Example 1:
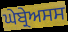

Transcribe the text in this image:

ਘੇਬ੍ਰੇਅਸਸ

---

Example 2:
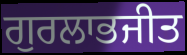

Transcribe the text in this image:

ਗੁਰਲਾਭਜੀਤ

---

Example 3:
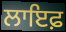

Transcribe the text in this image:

ਲਾਇਫ਼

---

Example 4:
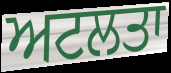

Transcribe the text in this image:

ਅਟਲਤਾ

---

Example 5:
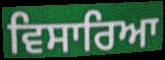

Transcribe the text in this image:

ਵਿਸਾਰਿਆ